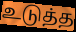
உடுத்த